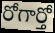
రోగార్తో